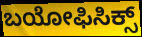
ಬಯೋಫಿಸಿಕ್ಸ್